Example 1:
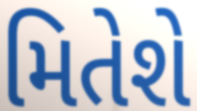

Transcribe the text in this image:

મિતેશે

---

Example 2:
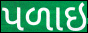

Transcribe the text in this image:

પળાઇ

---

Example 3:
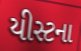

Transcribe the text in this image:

યીસ્ટના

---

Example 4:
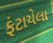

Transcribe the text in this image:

ફંટાયેલા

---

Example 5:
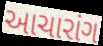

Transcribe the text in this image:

આચારાંગ